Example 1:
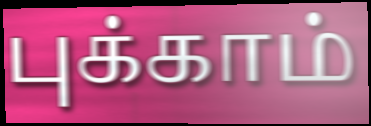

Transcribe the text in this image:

புக்காம்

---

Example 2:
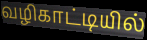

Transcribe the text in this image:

வழிகாட்டியில்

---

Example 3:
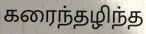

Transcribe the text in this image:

கரைந்தழிந்த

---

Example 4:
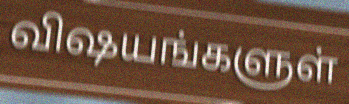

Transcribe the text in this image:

விஷயங்களுள்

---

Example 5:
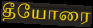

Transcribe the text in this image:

தீயோரை